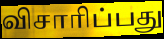
விசாரிப்பது